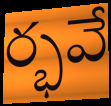
ర్భవే